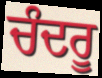
ਚੰਦਰੂ